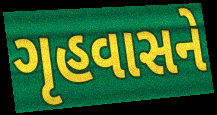
ગૃહવાસને